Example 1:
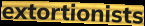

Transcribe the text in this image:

extortionists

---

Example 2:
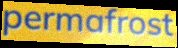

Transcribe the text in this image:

permafrost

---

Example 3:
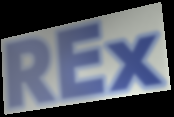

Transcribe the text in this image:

REx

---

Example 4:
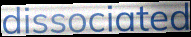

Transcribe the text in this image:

dissociated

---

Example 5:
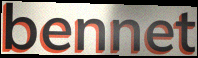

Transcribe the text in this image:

bennet